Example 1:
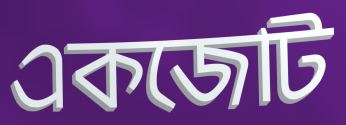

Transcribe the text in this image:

একজোট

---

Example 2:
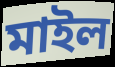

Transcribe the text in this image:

মাইল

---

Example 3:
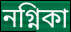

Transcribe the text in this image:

নগ্নিকা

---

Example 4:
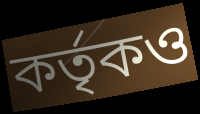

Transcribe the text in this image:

কর্তৃকও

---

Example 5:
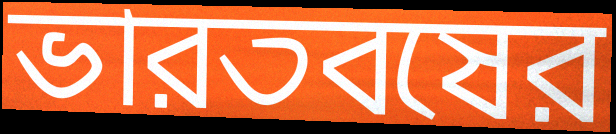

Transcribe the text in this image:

ভারতবষের